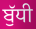
ਬੁੱਧੀ